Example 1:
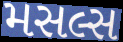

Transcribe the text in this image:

મસલ્સ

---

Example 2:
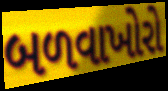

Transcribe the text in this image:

બળવાખોરો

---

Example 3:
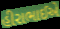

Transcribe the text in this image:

હીરાભાઈએ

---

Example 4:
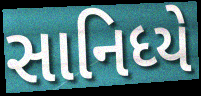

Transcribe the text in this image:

સાનિધ્યે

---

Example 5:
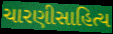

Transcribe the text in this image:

ચારણીસાહિત્ય